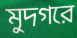
মুদগরে